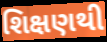
શિક્ષણથી